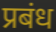
प्रबंध